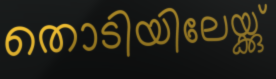
തൊടിയിലേയ്ക്കു്